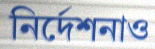
নির্দেশনাও